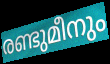
രണ്ടുമീനും